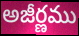
అజీర్ణము